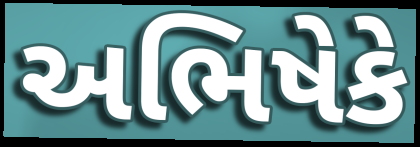
અભિષેકે